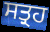
ਸਤ੍ਰਹ